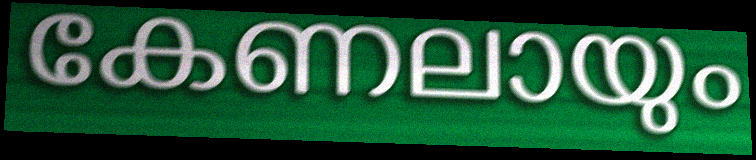
കേണലായും